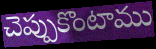
చెప్పుకొంటాము